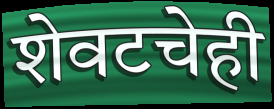
शेवटचेही